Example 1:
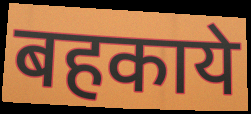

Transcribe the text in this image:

बहकाये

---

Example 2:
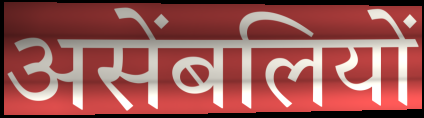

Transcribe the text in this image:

असेंबलियों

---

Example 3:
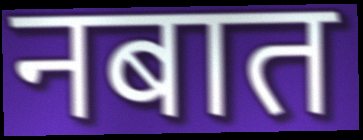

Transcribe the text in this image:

नबात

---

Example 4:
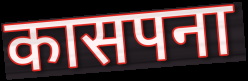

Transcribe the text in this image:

कासपना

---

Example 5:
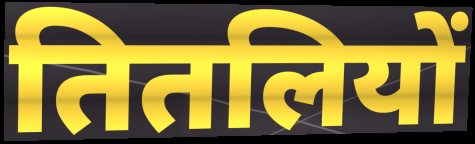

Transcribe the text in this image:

तितलियों